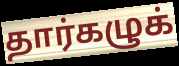
தார்கழுக்